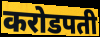
करोडपती